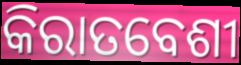
କିରାତବେଶୀ